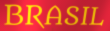
BRASIL